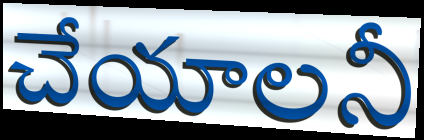
చేయాలనీ